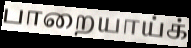
பாறையாய்க்